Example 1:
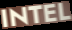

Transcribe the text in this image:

INTEL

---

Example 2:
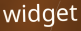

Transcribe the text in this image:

widget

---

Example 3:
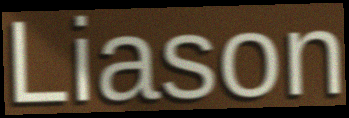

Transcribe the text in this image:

Liason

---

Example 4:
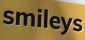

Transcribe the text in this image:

smileys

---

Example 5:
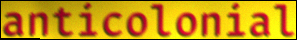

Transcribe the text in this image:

anticolonial